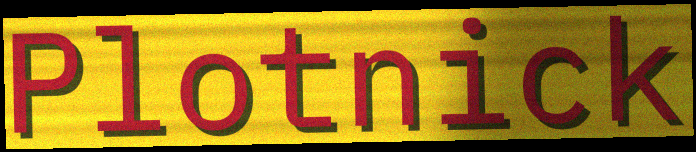
Plotnick